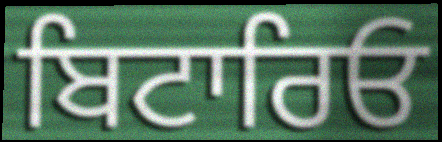
ਬਿਟਾਰਿਓ